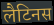
लैटिनस